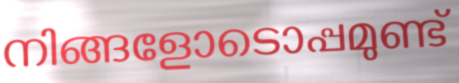
നിങ്ങളോടൊപ്പമുണ്ട്